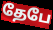
தேபே